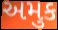
અમુક